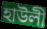
হাউলী